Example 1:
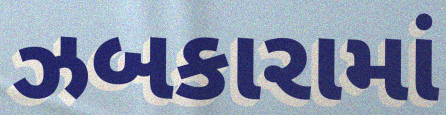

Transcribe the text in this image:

ઝબકારામાં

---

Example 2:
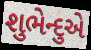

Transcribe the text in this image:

શુભેન્દુએ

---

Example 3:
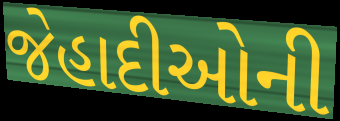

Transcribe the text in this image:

જેહાદીઓની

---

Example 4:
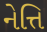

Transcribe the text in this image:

નેત્તિ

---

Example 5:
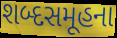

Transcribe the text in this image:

શબ્દસમૂહના